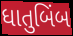
ધાતુબિંબ